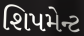
શિપમેન્ટ